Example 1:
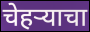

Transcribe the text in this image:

चेहर्‍याचा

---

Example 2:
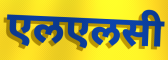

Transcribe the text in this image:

एलएलसी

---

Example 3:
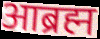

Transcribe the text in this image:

आब्रह्म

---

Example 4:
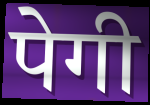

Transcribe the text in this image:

पेगी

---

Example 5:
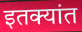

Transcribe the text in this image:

इतक्यांत